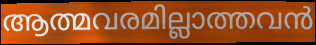
ആത്മവരമില്ലാത്തവൻ